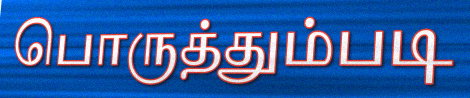
பொருத்தும்படி